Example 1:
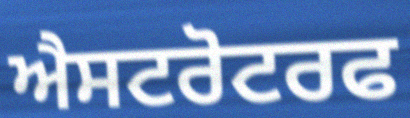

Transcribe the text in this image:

ਐਸਟਰੋਟਰਫ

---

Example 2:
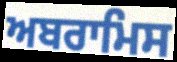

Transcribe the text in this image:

ਅਬਰਾਮਿਸ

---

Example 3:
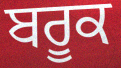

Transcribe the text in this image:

ਬਰੂਕ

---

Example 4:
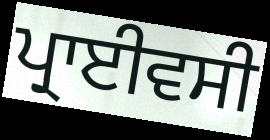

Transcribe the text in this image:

ਪ੍ਰਾਈਵਸੀ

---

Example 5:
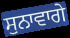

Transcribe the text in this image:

ਸੁਨਾਵਾਗੇ